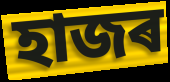
হাজৰ